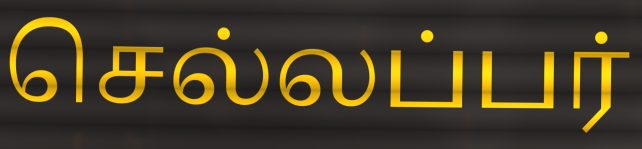
செல்லப்பர்